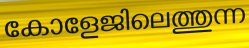
കോളേജിലെത്തുന്ന